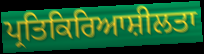
ਪ੍ਰਤਿਕਿਰਿਆਸ਼ੀਲਤਾ